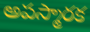
అపస్మారక